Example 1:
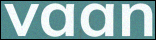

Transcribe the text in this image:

vaan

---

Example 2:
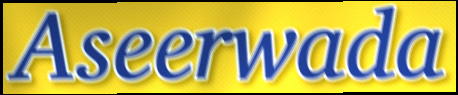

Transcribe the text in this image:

Aseerwada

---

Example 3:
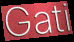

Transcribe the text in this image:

Gati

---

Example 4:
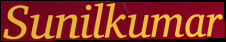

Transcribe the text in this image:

Sunilkumar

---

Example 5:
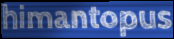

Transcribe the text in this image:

himantopus